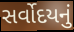
સર્વોદયનું